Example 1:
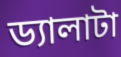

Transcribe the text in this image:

ড্যালাটা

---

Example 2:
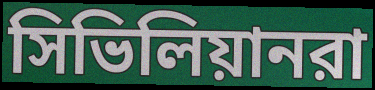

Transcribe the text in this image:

সিভিলিয়ানরা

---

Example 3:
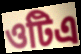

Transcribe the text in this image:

ওটিএ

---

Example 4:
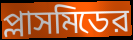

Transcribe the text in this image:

প্লাসমিডের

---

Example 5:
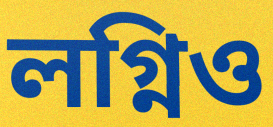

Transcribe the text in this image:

লগ্নিও